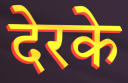
देरके